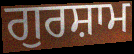
ਗੁਰਸ਼ਾਮ